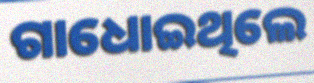
ଗାଧୋଇଥିଲେ